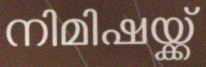
നിമിഷയ്ക്ക്